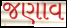
જણાવ